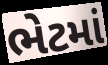
ભેટમાં